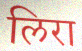
लिरा